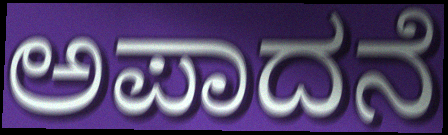
ಅಪಾದನೆ